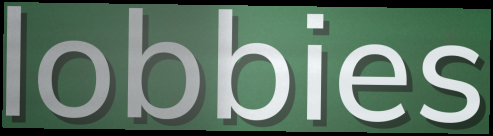
lobbies